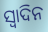
ସ୍ବାଦିନ